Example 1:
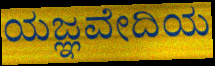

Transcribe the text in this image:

ಯಜ್ಞವೇದಿಯ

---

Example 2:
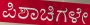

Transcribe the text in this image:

ಪಿಶಾಚಿಗಳೇ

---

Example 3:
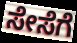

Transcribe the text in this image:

ಸೇಸೆಗೆ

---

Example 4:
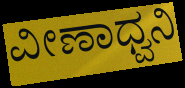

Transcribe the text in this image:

ವೀಣಾಧ್ವನಿ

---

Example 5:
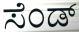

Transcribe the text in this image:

ಸೆಂಡ್